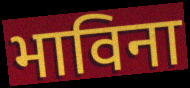
भाविना